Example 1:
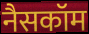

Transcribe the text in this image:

नैसकॉम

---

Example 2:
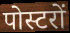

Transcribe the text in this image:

पोस्टरों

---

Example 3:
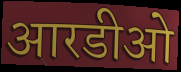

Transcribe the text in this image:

आरडीओ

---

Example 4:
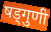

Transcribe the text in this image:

षड्गुणी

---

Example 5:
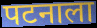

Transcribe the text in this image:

पटनाला